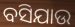
ବସିଯାଉ